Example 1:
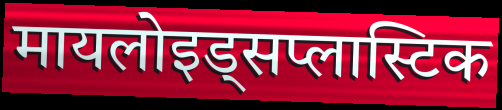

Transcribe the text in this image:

मायलोइड्सप्लास्टिक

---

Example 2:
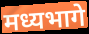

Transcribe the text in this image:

मध्यभागे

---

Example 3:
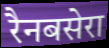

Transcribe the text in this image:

रैनबसेरा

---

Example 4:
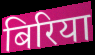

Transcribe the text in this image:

बिरिया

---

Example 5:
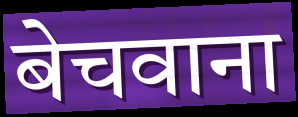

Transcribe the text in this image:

बेचवाना